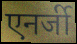
एनर्जी